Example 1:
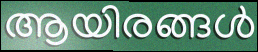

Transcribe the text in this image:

ആയിരങ്ങൾ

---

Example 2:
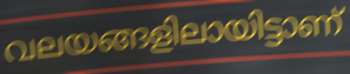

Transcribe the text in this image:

വലയങ്ങളിലായിട്ടാണ്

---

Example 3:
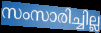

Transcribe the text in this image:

സംസാരിച്ചില്ല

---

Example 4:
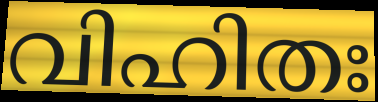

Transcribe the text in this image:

വിഹിതഃ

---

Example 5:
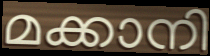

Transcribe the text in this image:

മക്കാനി